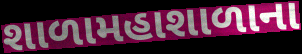
શાળામહાશાળાના